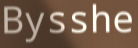
Bysshe